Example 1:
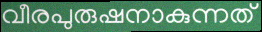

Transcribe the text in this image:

വീരപുരുഷനാകുന്നത്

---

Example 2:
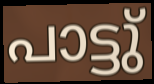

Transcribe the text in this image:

പാട്ടു്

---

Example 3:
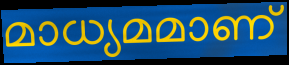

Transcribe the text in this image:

മാധ്യമമാണ്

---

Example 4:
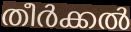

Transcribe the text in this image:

തീർക്കൽ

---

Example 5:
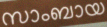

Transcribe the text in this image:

സാംബായ